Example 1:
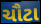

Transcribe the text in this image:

ચૌટા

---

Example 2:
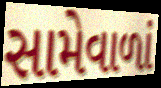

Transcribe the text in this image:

સામેવાળાં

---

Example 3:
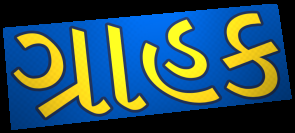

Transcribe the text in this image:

ગ્રાહક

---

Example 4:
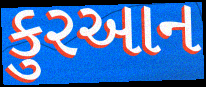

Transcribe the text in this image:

કુરઆન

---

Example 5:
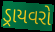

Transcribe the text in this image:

ડ્રાયવરો